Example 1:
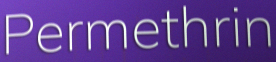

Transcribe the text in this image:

Permethrin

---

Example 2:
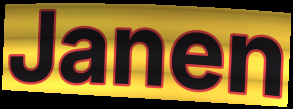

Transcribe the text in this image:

Janen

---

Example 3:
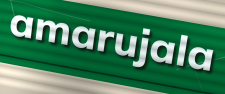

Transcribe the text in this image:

amarujala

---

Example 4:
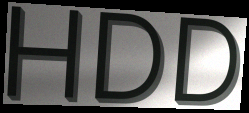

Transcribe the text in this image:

HDD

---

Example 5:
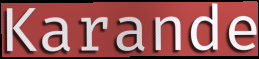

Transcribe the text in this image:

Karande